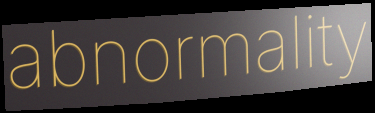
abnormality